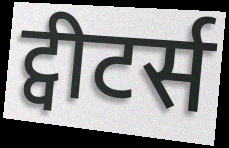
ट्वीटर्स